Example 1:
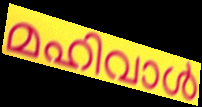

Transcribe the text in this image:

മഹിവാൾ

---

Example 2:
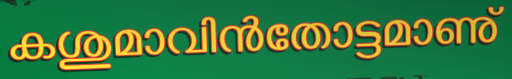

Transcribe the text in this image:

കശുമാവിൻതോട്ടമാണു്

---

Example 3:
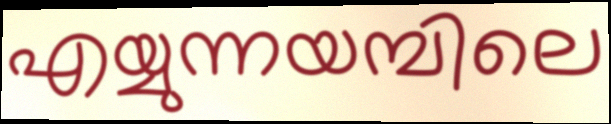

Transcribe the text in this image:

എയ്യുന്നയമ്പിലെ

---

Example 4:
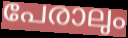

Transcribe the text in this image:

പേരാലും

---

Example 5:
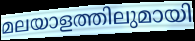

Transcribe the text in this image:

മലയാളത്തിലുമായി